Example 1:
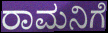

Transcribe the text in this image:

ರಾಮನಿಗೆ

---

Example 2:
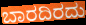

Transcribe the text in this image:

ಬಾರದಿರದು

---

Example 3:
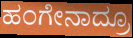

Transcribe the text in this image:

ಹಂಗೇನಾದ್ರೂ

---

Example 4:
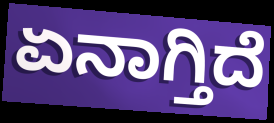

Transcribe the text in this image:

ಏನಾಗ್ತಿದೆ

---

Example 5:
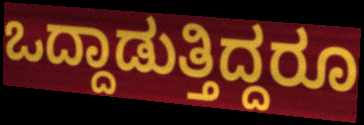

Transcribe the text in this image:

ಒದ್ದಾಡುತ್ತಿದ್ದರೂ